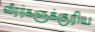
வீரர்களுக்குரிய